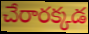
చేరారక్కడ